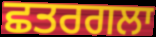
ਛਤਰਗਲਾ